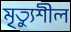
মৃত্যুশীল